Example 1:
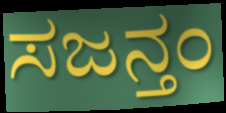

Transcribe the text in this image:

ಸಜನ್ತಂ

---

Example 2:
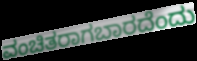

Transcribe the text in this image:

ವಂಚಿತರಾಗಬಾರದೆಂದು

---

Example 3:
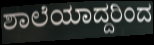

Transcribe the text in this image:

ಶಾಲೆಯಾದ್ದರಿಂದ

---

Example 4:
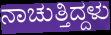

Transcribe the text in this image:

ನಾಚುತ್ತಿದ್ದಳು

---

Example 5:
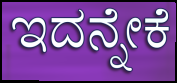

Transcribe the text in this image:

ಇದನ್ನೇಕೆ